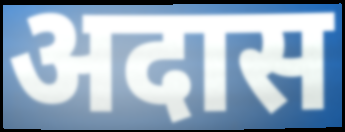
अदास